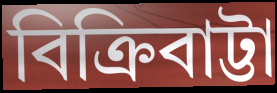
বিক্রিবাট্টা